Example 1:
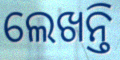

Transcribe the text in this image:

ଲେଖନ୍ତି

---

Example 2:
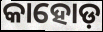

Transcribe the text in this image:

କାହୋଡ଼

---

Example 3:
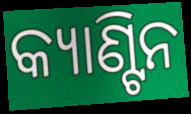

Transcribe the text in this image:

କ୍ୟାଣ୍ଟିନ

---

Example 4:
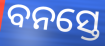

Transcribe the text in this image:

ବନସ୍ତେ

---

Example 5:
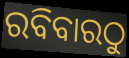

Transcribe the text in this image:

ରବିବାରଠୁ